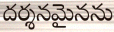
దర్శనమైనను